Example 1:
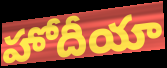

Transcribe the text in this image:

హోదీయా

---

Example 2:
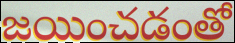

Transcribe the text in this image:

జయించడంతో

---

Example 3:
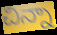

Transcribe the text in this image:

చిన్నా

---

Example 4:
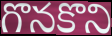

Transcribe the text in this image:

గొనకొని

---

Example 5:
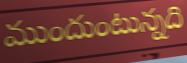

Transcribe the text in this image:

ముందుంటున్నది